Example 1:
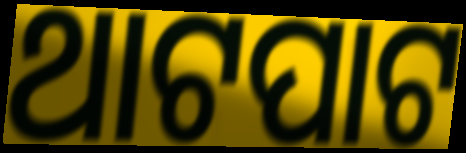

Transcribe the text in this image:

ଥାଟପାଟ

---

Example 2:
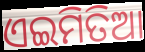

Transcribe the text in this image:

ଏଇମିତିଆ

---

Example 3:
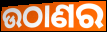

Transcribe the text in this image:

ଉଠାଣର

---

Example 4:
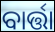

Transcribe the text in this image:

ବାର୍ତ୍ତା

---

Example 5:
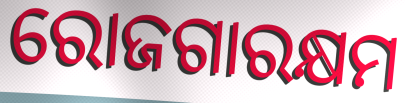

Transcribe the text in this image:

ରୋଜଗାରକ୍ଷମ